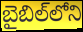
బైబిల్‌లోని